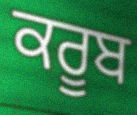
ਕਰੂਬ